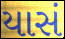
યાસં